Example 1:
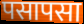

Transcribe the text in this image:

पसापसा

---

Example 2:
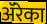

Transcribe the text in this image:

ॲरेका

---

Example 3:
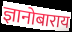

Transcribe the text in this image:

ज्ञानोबाराय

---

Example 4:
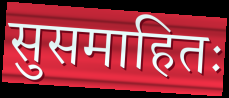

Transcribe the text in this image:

सुसमाहितः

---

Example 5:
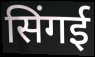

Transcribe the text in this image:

सिंगई